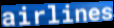
airlines